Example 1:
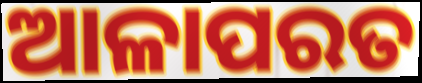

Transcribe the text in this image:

ଆଳାପରତ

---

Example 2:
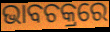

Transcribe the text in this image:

ଭାବଚକ୍ରରେ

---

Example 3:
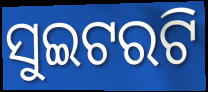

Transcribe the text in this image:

ସୁଇଟରଟି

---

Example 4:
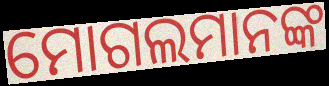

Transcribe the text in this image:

ମୋଗଲମାନଙ୍କ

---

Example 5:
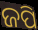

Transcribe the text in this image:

ଜପି